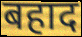
बहाद